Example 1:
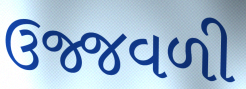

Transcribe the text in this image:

ઉજ્જવળી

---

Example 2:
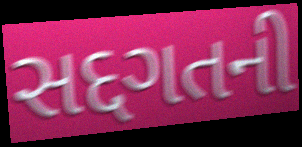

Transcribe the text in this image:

સદ્દગતની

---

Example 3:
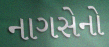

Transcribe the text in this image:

નાગસેનો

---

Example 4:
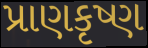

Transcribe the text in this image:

પ્રાણકૃષ્ણ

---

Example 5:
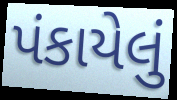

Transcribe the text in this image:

પંકાયેલું